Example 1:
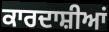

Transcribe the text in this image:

ਕਾਰਦਾਸ਼ੀਆਂ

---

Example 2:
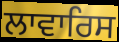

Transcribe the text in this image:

ਲਾਵਾਰਿਸ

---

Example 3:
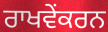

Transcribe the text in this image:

ਰਾਖਵੇਂਕਰਨ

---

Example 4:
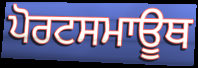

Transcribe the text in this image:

ਪੋਰਟਸਮਾਊਥ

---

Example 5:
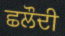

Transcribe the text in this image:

ਛਲੌਦੀ